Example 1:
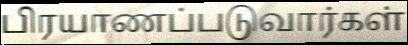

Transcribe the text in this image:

பிரயாணப்படுவார்கள்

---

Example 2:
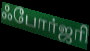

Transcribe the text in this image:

ஃபோர்ஜரி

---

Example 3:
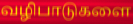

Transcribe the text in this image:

வழிபாடுகளை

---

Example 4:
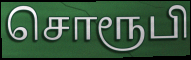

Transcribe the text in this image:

சொரூபி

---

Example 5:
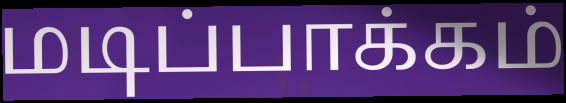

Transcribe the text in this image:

மடிப்பாக்கம்